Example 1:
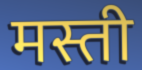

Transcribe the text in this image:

मस्‍ती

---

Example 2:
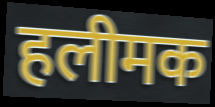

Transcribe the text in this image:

हलीमक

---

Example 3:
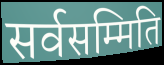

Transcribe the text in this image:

सर्वसम्मिति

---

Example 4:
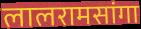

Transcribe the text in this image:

लालरामसांगा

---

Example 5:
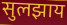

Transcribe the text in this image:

सुलझाय